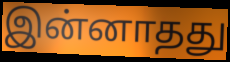
இன்னாதது